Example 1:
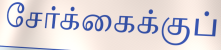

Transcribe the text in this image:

சேர்க்கைக்குப்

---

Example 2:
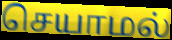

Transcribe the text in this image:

செயாமல்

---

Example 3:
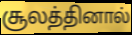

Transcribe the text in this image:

சூலத்தினால்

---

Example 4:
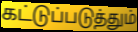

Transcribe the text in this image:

கட்டுப்படுத்தும்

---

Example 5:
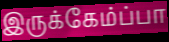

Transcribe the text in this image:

இருக்கேம்ப்பா